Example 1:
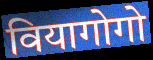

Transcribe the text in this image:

वियागोगो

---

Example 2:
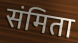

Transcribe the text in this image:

संमिता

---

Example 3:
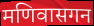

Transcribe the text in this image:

मणिवासगन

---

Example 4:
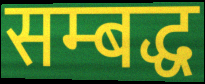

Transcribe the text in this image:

सम्बद्ध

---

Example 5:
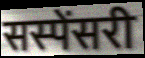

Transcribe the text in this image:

सस्पेंसरी